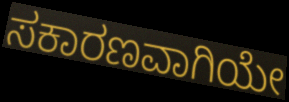
ಸಕಾರಣವಾಗಿಯೇ